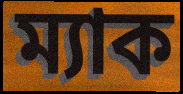
ম্যাক